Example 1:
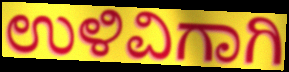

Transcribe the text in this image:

ಉಳಿವಿಗಾಗಿ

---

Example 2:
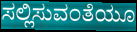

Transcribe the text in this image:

ಸಲ್ಲಿಸುವಂತೆಯೂ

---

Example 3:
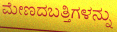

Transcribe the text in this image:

ಮೇಣದಬತ್ತಿಗಳನ್ನು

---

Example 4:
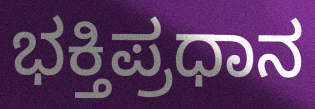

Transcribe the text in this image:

ಭಕ್ತಿಪ್ರಧಾನ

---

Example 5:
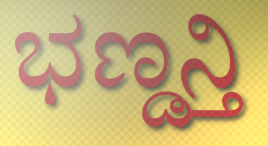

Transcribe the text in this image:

ಭಣ್ಡನ್ತಿ